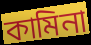
কামিনা